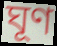
ঘূণ